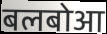
बलबोआ